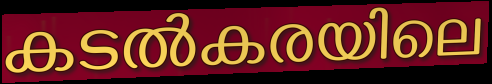
കടൽകരയിലെ